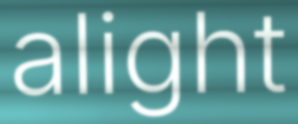
alight